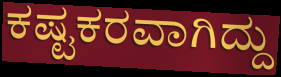
ಕಷ್ಟಕರವಾಗಿದ್ದು